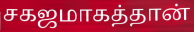
சகஜமாகத்தான்